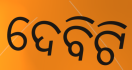
ଦେବିଟି